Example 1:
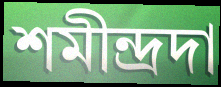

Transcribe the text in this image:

শমীন্দ্রদা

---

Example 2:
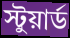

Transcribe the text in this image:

স্টুয়ার্ড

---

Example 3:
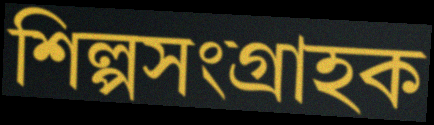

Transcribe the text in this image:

শিল্পসংগ্রাহক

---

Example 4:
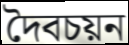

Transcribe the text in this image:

দৈবচয়ন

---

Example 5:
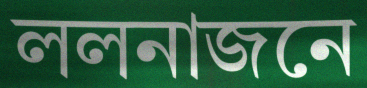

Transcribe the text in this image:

ললনাজনে